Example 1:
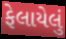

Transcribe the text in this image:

ફેલાયેલું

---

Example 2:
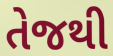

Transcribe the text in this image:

તેજથી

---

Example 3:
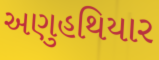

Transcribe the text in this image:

અણુહથિયાર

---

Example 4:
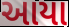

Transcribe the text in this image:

આયા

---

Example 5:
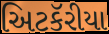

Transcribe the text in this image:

અિટકૅરીયા